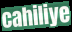
cahiliye